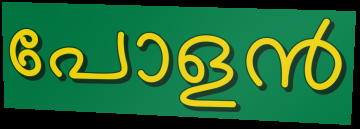
പോളൻ